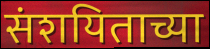
संशयिताच्या